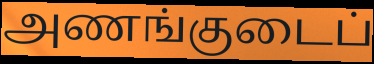
அணங்குடைப்